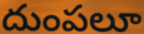
దుంపలూ